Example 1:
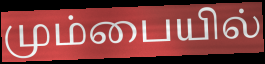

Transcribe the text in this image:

மும்பையில்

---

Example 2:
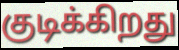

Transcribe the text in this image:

குடிக்கிறது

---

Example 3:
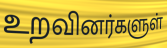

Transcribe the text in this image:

உறவினர்களுள்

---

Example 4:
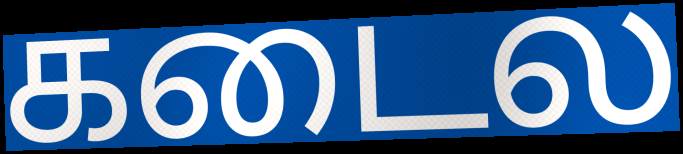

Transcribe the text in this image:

கடைல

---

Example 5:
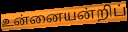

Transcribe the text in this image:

உன்னையன்றிப்